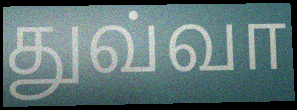
துவ்வா